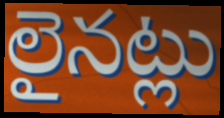
లైనట్లు